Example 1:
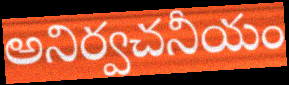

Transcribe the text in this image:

అనిర్వచనీయం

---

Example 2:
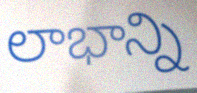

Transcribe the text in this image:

లాభాన్ని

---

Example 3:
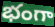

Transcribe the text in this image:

భంగా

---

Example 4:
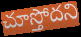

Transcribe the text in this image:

చూస్తోదని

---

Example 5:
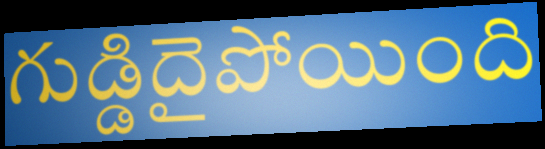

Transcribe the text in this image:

గుడ్డిదైపోయింది